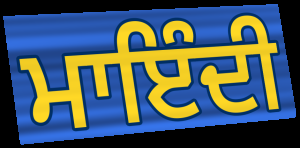
ਮਾਇੰਦੀ